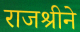
राजश्रीने